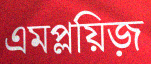
এমপ্লয়িজ়